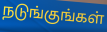
நடுங்குங்கள்